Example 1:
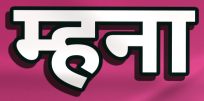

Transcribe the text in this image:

म्हना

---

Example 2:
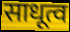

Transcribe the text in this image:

साधूत्व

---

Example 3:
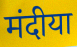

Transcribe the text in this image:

मंदीया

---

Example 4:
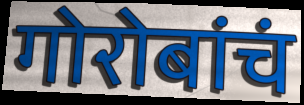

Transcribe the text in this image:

गोरोबांचं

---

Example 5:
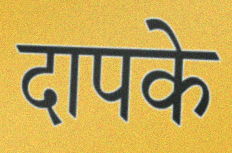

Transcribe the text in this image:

दापके